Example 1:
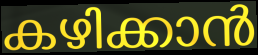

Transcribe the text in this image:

കഴിക്കാൻ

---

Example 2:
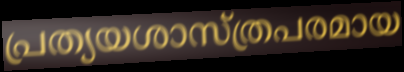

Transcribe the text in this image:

പ്രത്യയശാസ്ത്രപരമായ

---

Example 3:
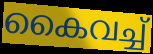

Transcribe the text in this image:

കൈവച്ച്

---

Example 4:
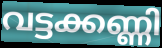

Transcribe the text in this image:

വട്ടക്കണ്ണി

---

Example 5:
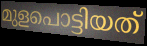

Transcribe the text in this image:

മുളപൊട്ടിയത്